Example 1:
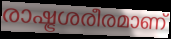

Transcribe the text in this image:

രാഷ്ട്രശരീരമാണ്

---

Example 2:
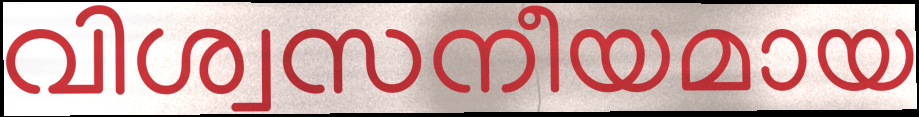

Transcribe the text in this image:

വിശ്വസനീയമായ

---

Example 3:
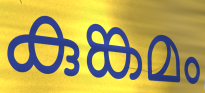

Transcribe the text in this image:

കുങ്കമം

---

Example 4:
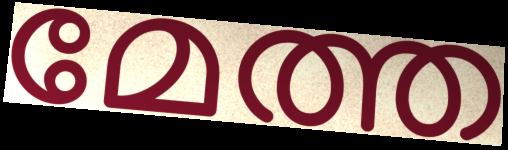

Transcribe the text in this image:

മേത്ത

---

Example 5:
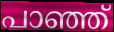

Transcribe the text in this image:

പാഞ്ഞ്